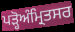
ਪੜ੍ਹੋਅੰਮ੍ਰਿਤਸਰ